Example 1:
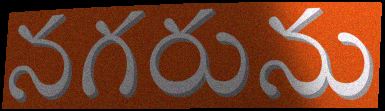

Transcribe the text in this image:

నగరును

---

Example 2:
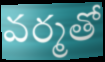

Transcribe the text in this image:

వర్మతో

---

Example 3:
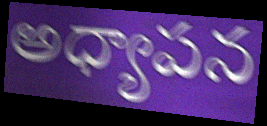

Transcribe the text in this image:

అధ్యాపన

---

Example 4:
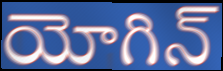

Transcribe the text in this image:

యోగిన్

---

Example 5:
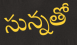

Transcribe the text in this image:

సున్నతో